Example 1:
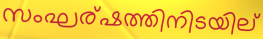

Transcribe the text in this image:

സംഘര്ഷത്തിനിടയില്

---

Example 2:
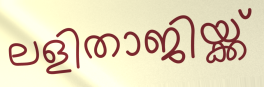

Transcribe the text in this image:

ലളിതാജിയ്ക്ക്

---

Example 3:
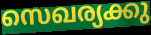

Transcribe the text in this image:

സെഖര്യക്കു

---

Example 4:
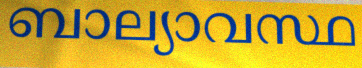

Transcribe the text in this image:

ബാല്യാവസ്ഥ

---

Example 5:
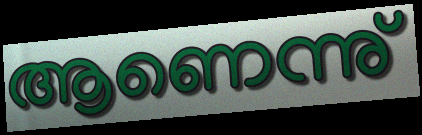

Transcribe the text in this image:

ആണെന്നു്